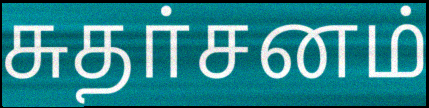
சுதர்சனம்